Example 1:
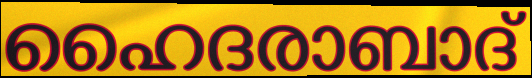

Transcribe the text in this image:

ഹൈദരാബാദ്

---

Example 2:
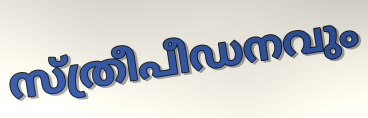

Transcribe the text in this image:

സ്ത്രീപീഡനവും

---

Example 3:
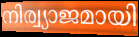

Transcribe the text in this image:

നിര്വ്യാജമായി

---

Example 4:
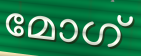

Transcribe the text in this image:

മോഗ്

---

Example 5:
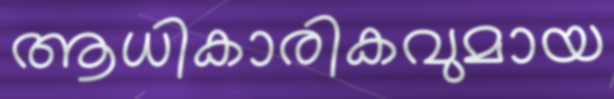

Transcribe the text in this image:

ആധികാരികവുമായ